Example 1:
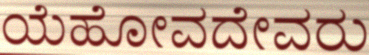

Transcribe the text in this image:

ಯೆಹೋವದೇವರು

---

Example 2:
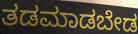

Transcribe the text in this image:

ತಡಮಾಡಬೇಡ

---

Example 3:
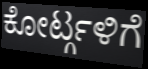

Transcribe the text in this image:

ಕೋರ್ಟ್ಗಳಿಗೆ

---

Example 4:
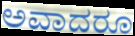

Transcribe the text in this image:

ಅವಾದರೂ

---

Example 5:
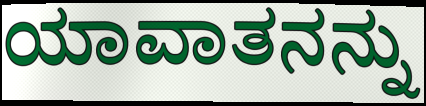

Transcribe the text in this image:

ಯಾವಾತನನ್ನು